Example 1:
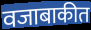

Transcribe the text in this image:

वजाबाकीत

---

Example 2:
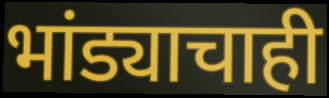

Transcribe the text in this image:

भांड्याचाही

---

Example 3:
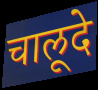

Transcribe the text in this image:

चालूदे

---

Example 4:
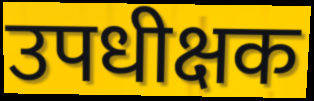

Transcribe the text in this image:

उपधीक्षक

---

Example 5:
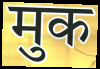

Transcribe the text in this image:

मुक